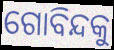
ଗୋବିନ୍ଦକୁ